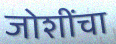
जोशींचा